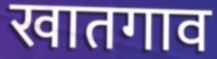
खातगाव